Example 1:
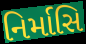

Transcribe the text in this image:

નિર્માસિ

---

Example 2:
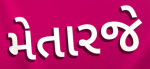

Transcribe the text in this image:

મેતારજે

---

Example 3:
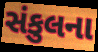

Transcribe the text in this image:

સંકુલના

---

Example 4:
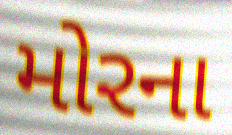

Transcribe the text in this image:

મોરના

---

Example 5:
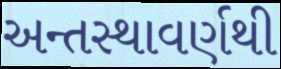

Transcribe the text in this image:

અન્તસ્થાવર્ણથી